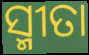
ସ୍ମୀତା